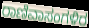
ರಾಣಿವಾಸಂಗಳಿರ